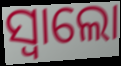
ସ୍ବାଲୋ